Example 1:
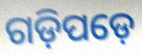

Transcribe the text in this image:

ଗଡ଼ିପଡ଼େ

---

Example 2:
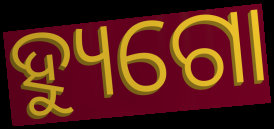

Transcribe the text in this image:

ହ୍ୟୁଗୋ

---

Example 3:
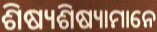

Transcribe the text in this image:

ଶିଷ୍ୟଶିଷ୍ୟାମାନେ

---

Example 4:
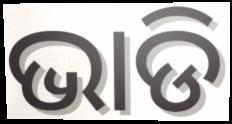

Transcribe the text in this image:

ଭାଡି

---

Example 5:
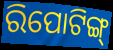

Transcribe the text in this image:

ରିପୋଟିଙ୍ଗ୍